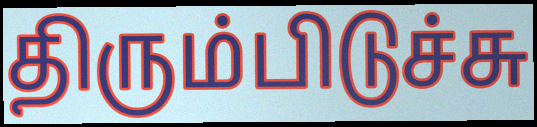
திரும்பிடுச்சு